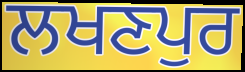
ਲਖਣਪੁਰ